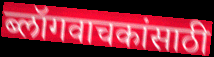
ब्लॉगवाचकांसाठी